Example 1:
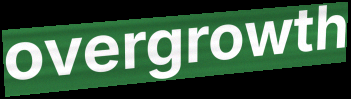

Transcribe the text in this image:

overgrowth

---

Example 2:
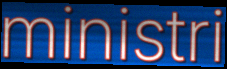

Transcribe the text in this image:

ministri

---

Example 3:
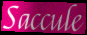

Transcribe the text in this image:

Saccule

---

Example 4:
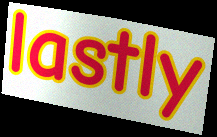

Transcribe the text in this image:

lastly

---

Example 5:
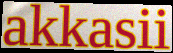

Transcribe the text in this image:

akkasii